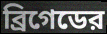
ব্রিগেডের